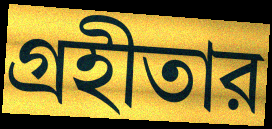
গ্রহীতার